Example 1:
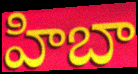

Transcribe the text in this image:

హిబా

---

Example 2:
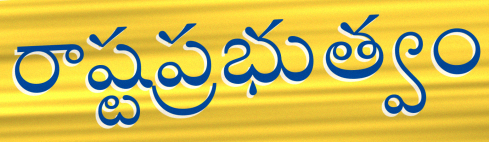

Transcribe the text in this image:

రాష్టప్రభుత్వం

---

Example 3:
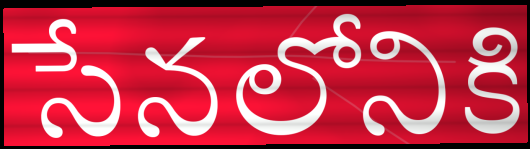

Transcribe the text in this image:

సేనలోనికి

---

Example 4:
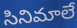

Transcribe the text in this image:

సినిమాలే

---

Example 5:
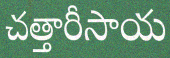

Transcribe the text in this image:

చత్తారీసాయ